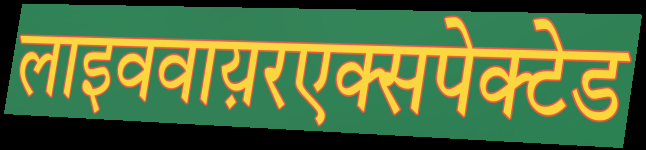
लाइववाय़रएक्सपेक्टेड